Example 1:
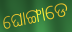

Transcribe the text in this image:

ଘୋଙ୍ଗାଡେ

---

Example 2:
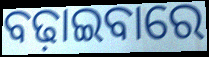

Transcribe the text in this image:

ବଢ଼ାଇବାରେ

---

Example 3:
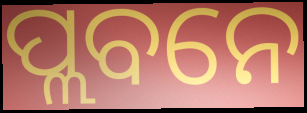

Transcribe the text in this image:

ପ୍ଲବନେ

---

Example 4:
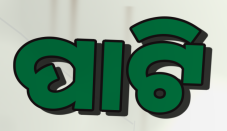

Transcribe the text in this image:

ପାଟି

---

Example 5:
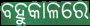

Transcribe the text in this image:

ବହୁକାଳରେ